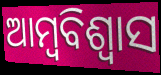
ଆମ୍ବବିଶ୍ଵାସ